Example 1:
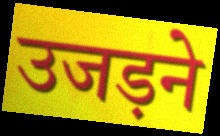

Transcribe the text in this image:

उजड़ने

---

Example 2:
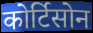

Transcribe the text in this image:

कोर्टिसोन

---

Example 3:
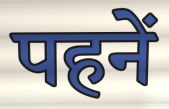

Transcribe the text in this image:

पहनें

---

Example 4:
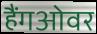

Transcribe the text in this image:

हैंगओवर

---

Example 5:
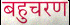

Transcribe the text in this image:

बहुचरण